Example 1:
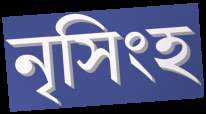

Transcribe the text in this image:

নৃসিংহ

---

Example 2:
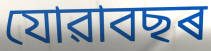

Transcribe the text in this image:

যোৱাবছৰ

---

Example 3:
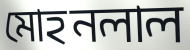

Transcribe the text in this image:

মোহনলাল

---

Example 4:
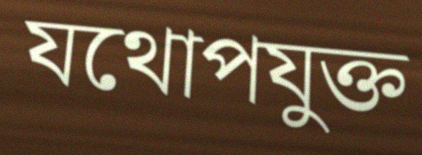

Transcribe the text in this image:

যথোপযুক্ত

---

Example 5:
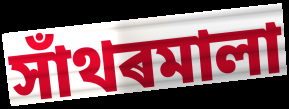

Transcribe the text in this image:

সাঁথৰমালা